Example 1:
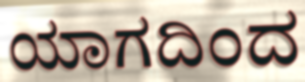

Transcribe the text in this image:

ಯಾಗದಿಂದ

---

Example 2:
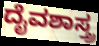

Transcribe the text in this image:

ದೈವಶಾಸ್ತ್ರ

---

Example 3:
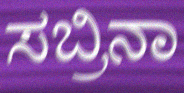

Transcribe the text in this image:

ಸಬ್ರಿನಾ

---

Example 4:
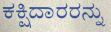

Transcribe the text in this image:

ಕಕ್ಷಿದಾರರನ್ನು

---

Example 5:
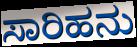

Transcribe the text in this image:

ಸಾರಿಹನು